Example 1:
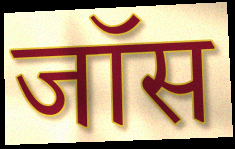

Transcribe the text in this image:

जॉस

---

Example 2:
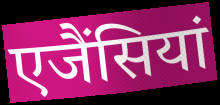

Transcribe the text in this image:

एजैंसियां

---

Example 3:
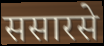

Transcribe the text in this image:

ससारसे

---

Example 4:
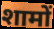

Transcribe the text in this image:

शामों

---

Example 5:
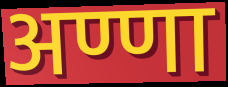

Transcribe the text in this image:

अण्णा